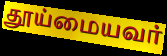
தூய்மையவர்